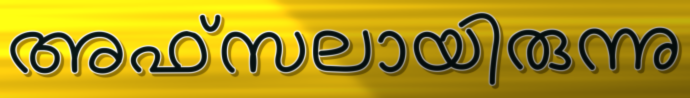
അഫ്സലായിരുന്നു